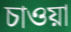
চাওয়া